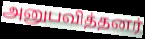
அனுபவித்தனர்